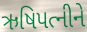
ઋષિપત્નીને